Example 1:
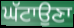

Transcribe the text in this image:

ਘੱਟਾਉਣਾ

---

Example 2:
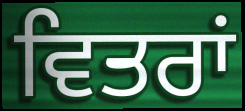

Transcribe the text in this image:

ਵਿਤਰਾਂ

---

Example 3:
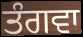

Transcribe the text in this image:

ਤੰਗਵਾ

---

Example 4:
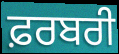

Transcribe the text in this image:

ਫ਼ਰਬਰੀ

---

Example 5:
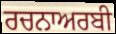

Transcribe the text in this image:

ਰਚਨਾਅਰਬੀ